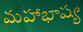
మహాభాష్య